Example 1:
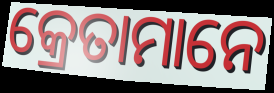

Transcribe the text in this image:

କ୍ରେତାମାନେ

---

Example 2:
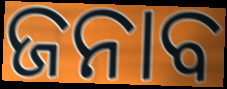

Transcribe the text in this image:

ଜନାବ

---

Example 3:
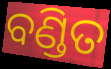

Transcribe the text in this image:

ବଣ୍ଡିତ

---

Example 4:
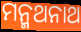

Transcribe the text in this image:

ମନ୍ମଥନାଥ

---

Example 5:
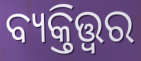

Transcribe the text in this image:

ବ୍ୟକ୍ତିତ୍ତ୍ଵର